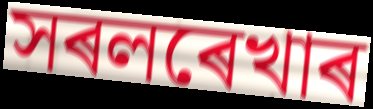
সৰলৰেখাৰ